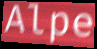
Alpe